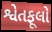
શ્વેતફૂલો